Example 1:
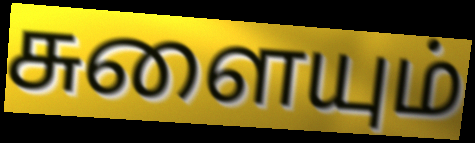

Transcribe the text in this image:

சுளையும்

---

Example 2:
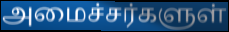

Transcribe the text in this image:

அமைச்சர்களுள்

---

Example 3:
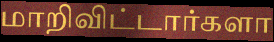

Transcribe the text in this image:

மாறிவிட்டார்களா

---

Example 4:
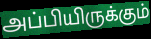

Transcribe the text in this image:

அப்பியிருக்கும்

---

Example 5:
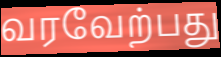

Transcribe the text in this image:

வரவேற்பது